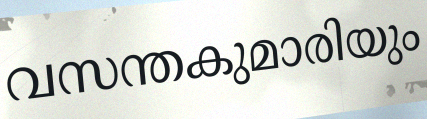
വസന്തകുമാരിയും